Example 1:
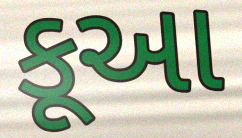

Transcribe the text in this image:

કૂઆ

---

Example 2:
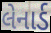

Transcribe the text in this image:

લેનાર્ડ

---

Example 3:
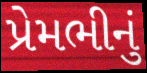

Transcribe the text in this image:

પ્રેમભીનું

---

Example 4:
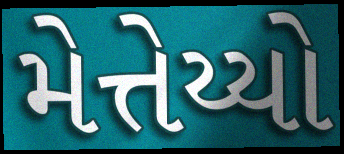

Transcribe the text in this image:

મેત્તેય્યો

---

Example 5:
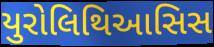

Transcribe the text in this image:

યુરોલિથિઆસિસ